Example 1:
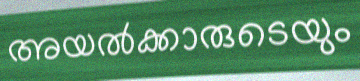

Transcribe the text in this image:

അയൽക്കാരുടെയും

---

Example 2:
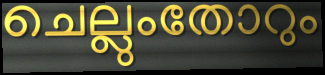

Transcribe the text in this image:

ചെല്ലുംതോറും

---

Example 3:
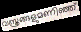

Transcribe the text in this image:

വസ്ത്രങ്ങളുമണിഞ്ഞ്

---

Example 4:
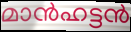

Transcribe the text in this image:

മാൻഹട്ടൻ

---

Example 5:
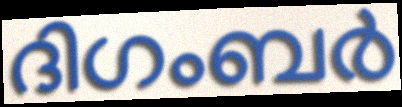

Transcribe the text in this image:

ദിഗംബർ